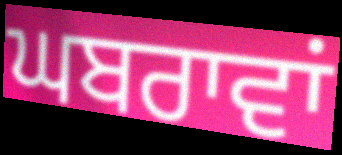
ਘਬਰਾਵਾਂ